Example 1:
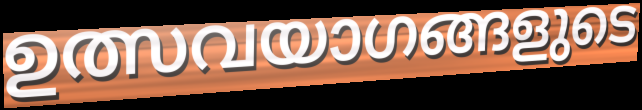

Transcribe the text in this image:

ഉത്സവയാഗങ്ങളുടെ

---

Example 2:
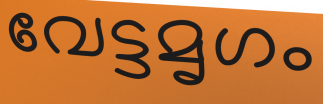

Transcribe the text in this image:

വേട്ടമൃഗം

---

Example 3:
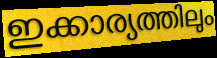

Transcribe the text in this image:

ഇക്കാര്യത്തിലും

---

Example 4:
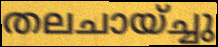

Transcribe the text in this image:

തലചായ്ച്ചു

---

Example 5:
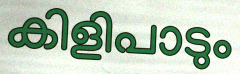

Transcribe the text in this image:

കിളിപാടും